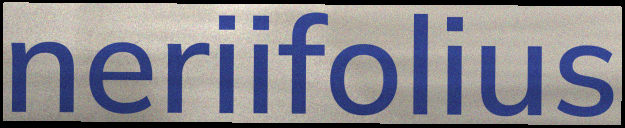
neriifolius